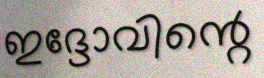
ഇദ്ദോവിന്റെ